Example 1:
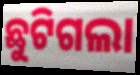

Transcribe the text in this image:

ଛୁଟିଗଲା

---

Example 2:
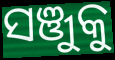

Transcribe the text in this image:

ସଞ୍ଜୁକୁ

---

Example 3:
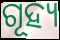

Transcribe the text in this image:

ଗୂହ୍ୟ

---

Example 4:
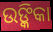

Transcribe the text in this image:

ଉଙ୍କିକା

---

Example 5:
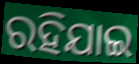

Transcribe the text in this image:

ରହିଯାଇ